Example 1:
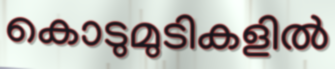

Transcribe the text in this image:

കൊടുമുടികളിൽ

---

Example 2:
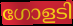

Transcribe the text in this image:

ഗോളടി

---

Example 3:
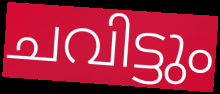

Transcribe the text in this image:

ചവിട്ടും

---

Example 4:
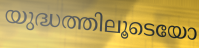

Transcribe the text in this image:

യുദ്ധത്തിലൂടെയോ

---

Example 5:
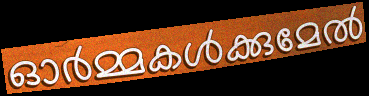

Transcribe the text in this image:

ഓർമ്മകൾക്കുമേൽ